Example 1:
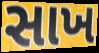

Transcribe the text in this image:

સાખ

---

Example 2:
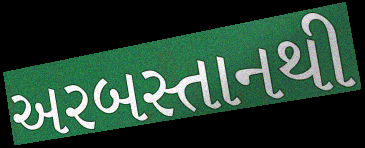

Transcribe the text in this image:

અરબસ્તાનથી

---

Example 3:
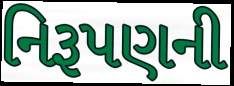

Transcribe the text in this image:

નિરૂપણની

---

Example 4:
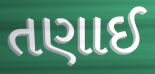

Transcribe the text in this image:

તણાઈ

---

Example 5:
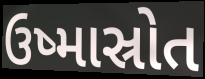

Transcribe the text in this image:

ઉષ્માસ્રોત